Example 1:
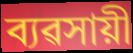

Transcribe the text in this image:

ব্যৱসায়ী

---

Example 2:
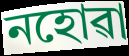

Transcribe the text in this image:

নহোৱা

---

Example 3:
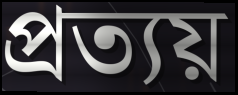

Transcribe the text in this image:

প্ৰত্যয়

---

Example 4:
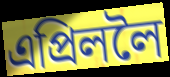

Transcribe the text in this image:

এপ্ৰিললৈ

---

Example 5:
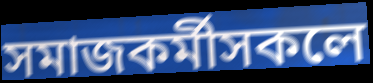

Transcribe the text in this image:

সমাজকৰ্মীসকলে